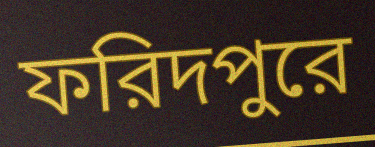
ফরিদপুরে